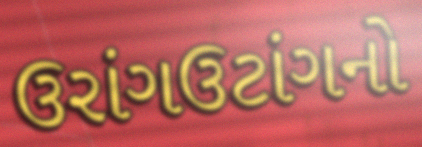
ઉરાંગઉટાંગનો